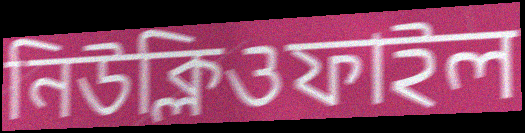
নিউক্লিওফাইল